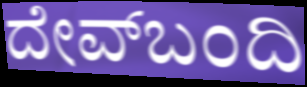
ದೇವ್‌ಬಂದಿ